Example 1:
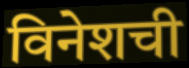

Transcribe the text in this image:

विनेशची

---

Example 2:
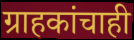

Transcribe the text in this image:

ग्राहकांचाही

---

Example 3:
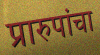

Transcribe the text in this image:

प्रारुपांचा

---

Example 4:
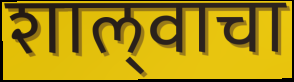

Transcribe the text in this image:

शाल्वाचा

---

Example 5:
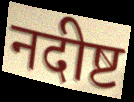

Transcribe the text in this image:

नदीष्ट